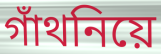
গাঁথনিয়ে